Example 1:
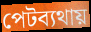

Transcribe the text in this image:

পেটব্যথায়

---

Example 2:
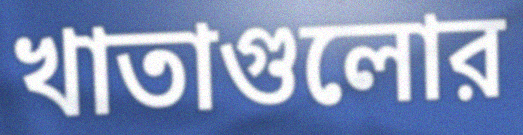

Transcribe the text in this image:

খাতাগুলোর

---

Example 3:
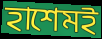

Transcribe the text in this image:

হাশেমই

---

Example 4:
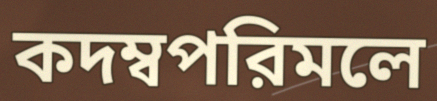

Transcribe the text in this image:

কদম্বপরিমলে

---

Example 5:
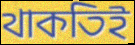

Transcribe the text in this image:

থাকতিই